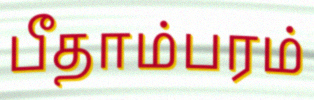
பீதாம்பரம்